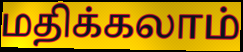
மதிக்கலாம்